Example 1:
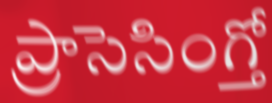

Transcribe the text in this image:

ప్రాసెసింగ్తో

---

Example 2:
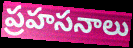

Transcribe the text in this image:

ప్రహసనాలు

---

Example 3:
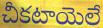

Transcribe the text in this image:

చీకటాయెలే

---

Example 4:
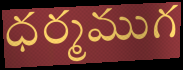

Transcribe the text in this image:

ధర్మముగ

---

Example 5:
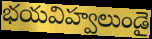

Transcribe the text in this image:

భయవిహ్వలుండై